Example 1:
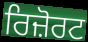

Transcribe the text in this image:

ਰਿਜ਼ੋਰਟ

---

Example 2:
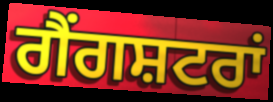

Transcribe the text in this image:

ਗੈਂਗਸ਼ਟਰਾਂ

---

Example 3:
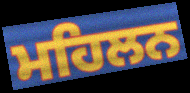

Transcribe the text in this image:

ਮਹਿਲਨ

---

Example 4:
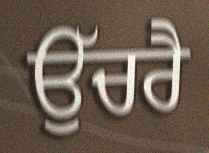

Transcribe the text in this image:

ਉੱਚਰੈ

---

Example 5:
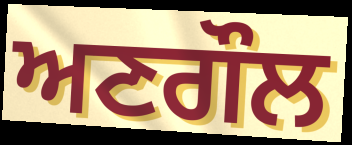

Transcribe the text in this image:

ਅਣਗੌਲ